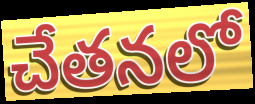
చేతనలో